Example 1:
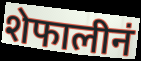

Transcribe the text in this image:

शेफालीनं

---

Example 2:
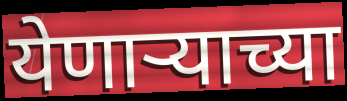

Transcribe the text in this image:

येणाऱ्याच्या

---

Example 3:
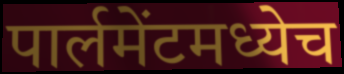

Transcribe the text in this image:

पार्लमेंटमध्येच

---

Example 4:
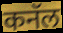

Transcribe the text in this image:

कनॅल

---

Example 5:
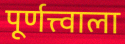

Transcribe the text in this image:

पूर्णत्त्वाला